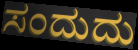
ಸಂದುದು